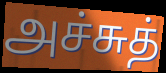
அச்சுத்